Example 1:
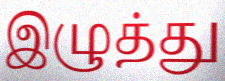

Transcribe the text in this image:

இழுத்து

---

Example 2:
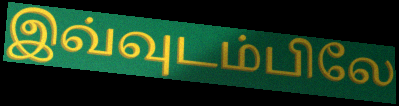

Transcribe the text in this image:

இவ்வுடம்பிலே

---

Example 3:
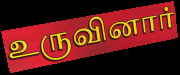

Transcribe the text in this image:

உருவினார்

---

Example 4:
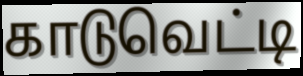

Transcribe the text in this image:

காடுவெட்டி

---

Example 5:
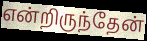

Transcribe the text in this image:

என்றிருந்தேன்